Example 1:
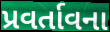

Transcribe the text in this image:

પ્રવર્તાવના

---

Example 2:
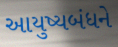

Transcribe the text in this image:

આયુષ્યબંધને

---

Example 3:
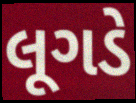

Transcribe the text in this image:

લૂગડે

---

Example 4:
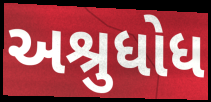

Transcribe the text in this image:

અશ્રુધોધ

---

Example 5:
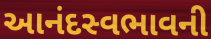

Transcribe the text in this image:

આનંદસ્વભાવની